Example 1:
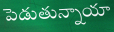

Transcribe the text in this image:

పెడుతున్నాయా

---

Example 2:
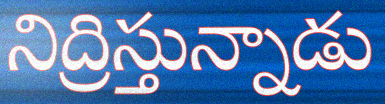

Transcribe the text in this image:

నిద్రిస్తున్నాడు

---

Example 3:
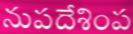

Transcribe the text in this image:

నుపదేశింప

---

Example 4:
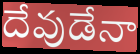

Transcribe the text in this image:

దేవుడేనా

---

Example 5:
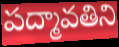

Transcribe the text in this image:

పద్మావతిని